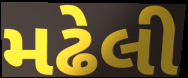
મઢેલી